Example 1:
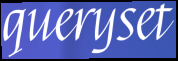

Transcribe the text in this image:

queryset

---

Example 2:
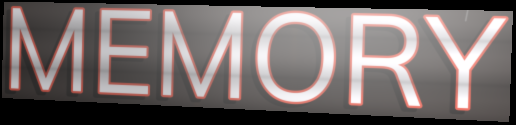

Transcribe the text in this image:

MEMORY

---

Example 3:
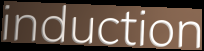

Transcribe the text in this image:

induction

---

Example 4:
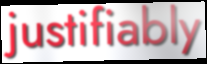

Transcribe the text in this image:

justifiably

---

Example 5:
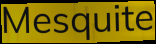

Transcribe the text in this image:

Mesquite